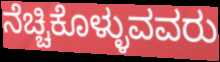
ನೆಚ್ಚಿಕೊಳ್ಳುವವರು